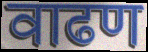
वाढण